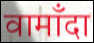
वामाँदा